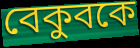
বেকুবকে